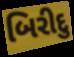
બિરીદુ